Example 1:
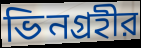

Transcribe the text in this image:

ভিনগ্রহীর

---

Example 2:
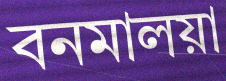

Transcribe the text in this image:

বনমালয়া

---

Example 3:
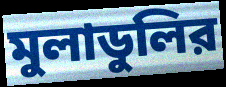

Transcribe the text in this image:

মুলাডুলির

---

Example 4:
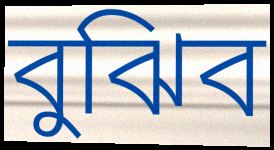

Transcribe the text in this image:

বুঝিব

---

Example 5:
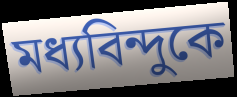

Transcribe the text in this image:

মধ্যবিন্দুকে